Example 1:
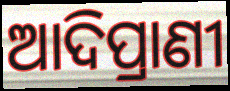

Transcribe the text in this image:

ଆଦିପ୍ରାଣୀ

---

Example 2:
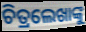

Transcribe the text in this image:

ଚିତ୍ରଲେଖାଙ୍କୁ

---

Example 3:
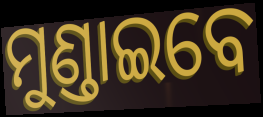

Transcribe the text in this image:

ମୁଣ୍ଡାଇବେ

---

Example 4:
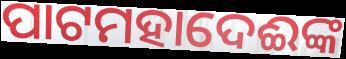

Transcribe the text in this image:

ପାଟମହାଦେଈଙ୍କ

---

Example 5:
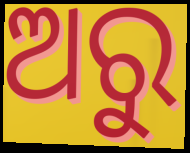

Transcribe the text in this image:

ଅରୁ